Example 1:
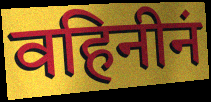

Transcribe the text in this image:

वहिनीनं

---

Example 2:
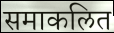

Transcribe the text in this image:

समाकलित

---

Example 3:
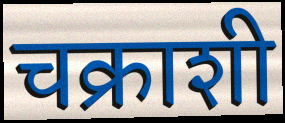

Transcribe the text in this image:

चक्राशी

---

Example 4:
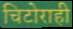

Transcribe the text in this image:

चिटोराही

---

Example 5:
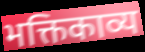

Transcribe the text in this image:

भक्तिकाव्य